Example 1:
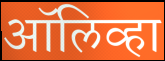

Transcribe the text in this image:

ऑलिव्हा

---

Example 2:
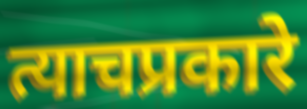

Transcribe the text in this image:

त्याचप्रकारे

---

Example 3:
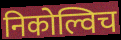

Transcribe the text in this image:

निकोल्विच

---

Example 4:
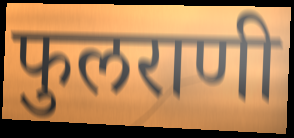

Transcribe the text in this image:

फुलराणी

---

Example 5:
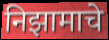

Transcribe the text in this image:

निझामाचे